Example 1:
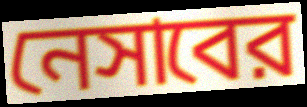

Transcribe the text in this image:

নেসাবের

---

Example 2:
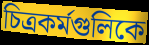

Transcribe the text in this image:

চিত্রকর্মগুলিকে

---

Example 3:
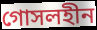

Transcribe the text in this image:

গোসলহীন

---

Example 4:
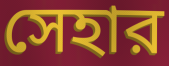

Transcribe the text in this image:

সেহার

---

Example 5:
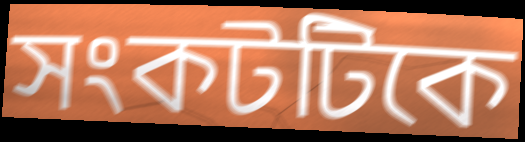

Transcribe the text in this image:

সংকটটিকে